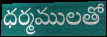
ధర్మములతో